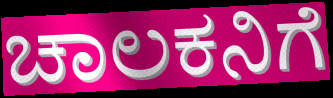
ಚಾಲಕನಿಗೆ